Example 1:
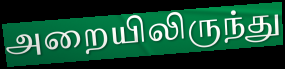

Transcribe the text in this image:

அறையிலிருந்து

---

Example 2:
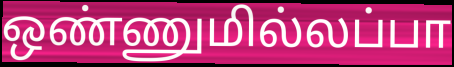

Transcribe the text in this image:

ஒண்ணுமில்லப்பா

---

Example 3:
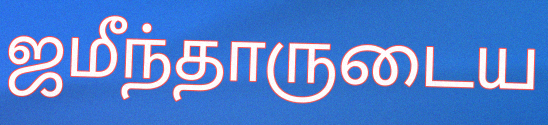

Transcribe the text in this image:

ஜமீந்தாருடைய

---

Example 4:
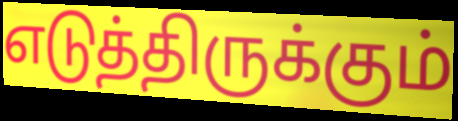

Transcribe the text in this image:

எடுத்திருக்கும்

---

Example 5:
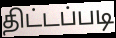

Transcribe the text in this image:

திட்டப்படி